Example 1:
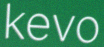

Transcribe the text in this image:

kevo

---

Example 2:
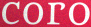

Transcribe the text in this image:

coro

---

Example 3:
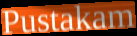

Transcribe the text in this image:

Pustakam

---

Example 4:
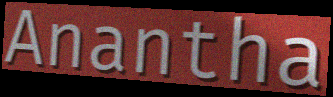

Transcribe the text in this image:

Anantha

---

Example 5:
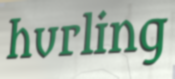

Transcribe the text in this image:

hurling